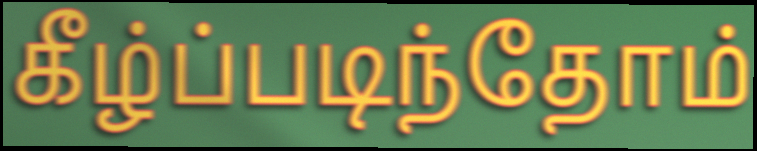
கீழ்ப்படிந்தோம்